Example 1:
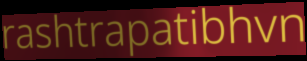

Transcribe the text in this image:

rashtrapatibhvn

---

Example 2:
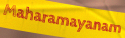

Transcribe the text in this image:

Maharamayanam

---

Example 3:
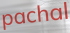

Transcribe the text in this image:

pachal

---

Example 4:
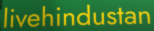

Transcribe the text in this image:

livehindustan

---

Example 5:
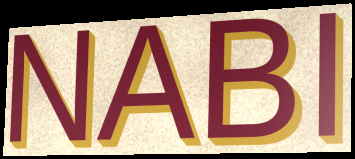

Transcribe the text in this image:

NABI